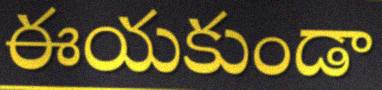
ఈయకుండా